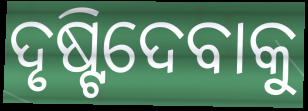
ଦୃଷ୍ଟିଦେବାକୁ